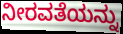
ನೀರವತೆಯನ್ನು